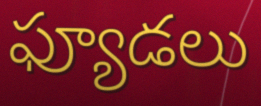
ఫ్యూడలు